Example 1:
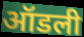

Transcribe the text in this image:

ऑडली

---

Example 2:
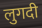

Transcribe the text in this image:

लुगदी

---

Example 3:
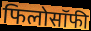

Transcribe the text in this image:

फिलोसॉफी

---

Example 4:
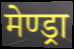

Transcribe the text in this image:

मेण्ड्रा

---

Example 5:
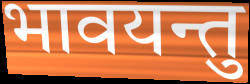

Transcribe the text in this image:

भावयन्तु